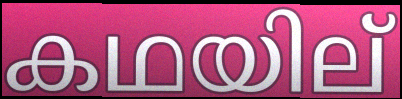
കഥയില്